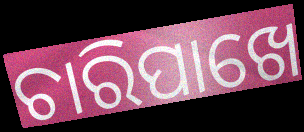
ଚାରିପାଖେ